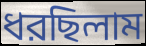
ধরছিলাম